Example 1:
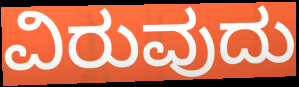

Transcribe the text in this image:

ವಿರುವುದು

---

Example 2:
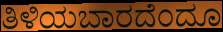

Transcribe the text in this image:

ತಿಳಿಯಬಾರದೆಂದೂ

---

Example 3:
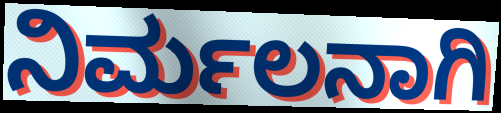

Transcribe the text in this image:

ನಿರ್ಮಲನಾಗಿ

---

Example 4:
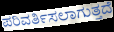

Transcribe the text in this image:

ಪರಿವರ್ತಿಸಲಾಗುತ್ತದೆ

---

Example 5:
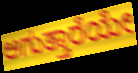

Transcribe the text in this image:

ಆಗುತ್ತಾರೆಯೇ